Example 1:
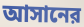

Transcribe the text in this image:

আসানের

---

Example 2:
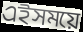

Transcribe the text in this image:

এইসময়ে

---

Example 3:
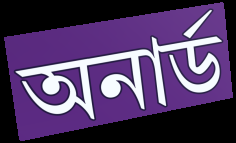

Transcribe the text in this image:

অনার্ড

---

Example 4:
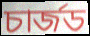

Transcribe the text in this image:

চার্জড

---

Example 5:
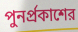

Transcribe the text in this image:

পুনর্প্রকাশের